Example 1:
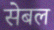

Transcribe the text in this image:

सेबल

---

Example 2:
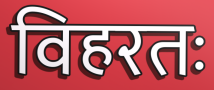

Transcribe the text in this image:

विहरतः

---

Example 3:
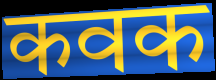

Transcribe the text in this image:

कवक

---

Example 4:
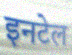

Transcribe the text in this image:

इनटेल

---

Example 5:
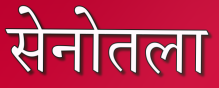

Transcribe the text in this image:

सेनोतला